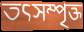
তৎসম্পৃক্ত